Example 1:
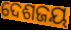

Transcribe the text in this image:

ଦେଶଜୟ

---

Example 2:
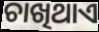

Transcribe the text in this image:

ଚାଖିଥାଏ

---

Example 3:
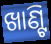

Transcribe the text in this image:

ଖାଣ୍ଟି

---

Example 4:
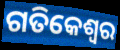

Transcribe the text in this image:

ଗତିକେଶ୍ବର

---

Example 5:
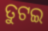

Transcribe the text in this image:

ତୁଟଇ